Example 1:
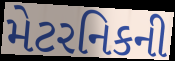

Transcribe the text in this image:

મેટરનિકની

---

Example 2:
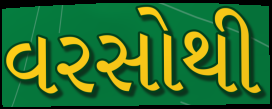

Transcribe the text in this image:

વરસોથી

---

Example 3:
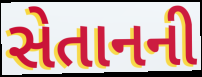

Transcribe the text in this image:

સેતાનની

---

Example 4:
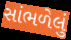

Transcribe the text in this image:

સાંભળેલું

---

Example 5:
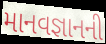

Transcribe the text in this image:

માનવજ્ઞાનની